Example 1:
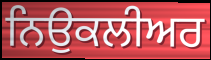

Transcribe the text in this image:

ਨਿਉਕਲੀਅਰ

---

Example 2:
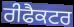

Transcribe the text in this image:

ਰੀਫੈਕਟਰ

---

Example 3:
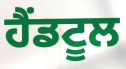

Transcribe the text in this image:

ਹੈਂਡਟੂਲ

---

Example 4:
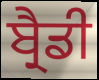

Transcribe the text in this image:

ਬ੍ਰੈਡੀ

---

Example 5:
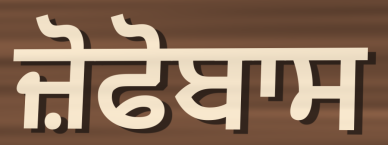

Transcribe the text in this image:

ਜ਼ੋਫੋਬਾਸ